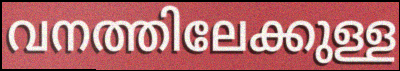
വനത്തിലേക്കുള്ള